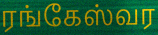
ரங்கேஸ்வர